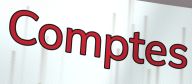
Comptes